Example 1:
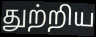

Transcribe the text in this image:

துற்றிய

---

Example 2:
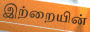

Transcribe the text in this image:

இற்றையின்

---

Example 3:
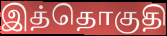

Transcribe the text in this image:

இத்தொகுதி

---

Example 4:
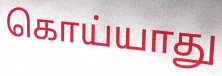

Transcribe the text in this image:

கொய்யாது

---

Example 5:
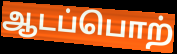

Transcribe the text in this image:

ஆடப்பொற்